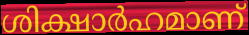
ശിക്ഷാർഹമാണ്